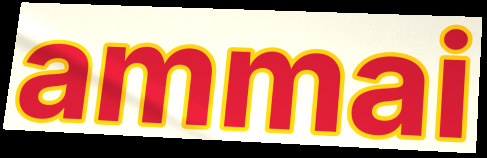
ammai